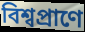
বিশ্বপ্রাণে